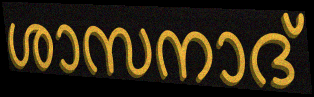
ശാസനാദ്